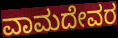
ವಾಮದೇವರ